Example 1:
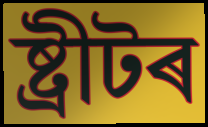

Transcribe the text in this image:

ষ্ট্ৰীটৰ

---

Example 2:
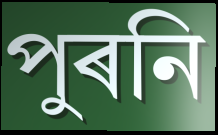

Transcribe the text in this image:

পুৰনি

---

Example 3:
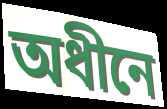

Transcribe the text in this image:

অধীনে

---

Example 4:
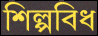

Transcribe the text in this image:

শিল্পবিধ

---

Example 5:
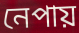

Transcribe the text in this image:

নেপায়